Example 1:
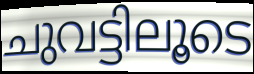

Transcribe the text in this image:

ചുവട്ടിലൂടെ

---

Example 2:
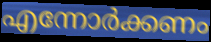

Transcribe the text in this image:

എന്നോർക്കണം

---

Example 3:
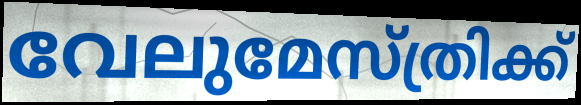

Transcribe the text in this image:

വേലുമേസ്ത്രിക്ക്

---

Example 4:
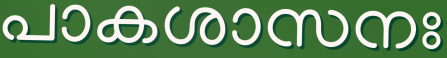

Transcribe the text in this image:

പാകശാസനഃ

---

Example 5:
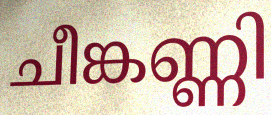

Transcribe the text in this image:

ചീങ്കണ്ണി